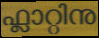
ഫ്ലാറ്റിനു